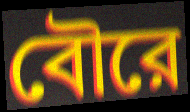
বৌরে